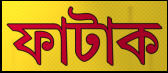
ফাটাক